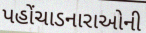
પહોંચાડનારાઓની